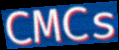
CMCs